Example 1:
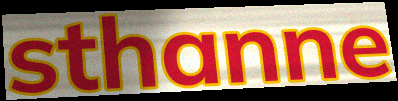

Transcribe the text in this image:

sthanne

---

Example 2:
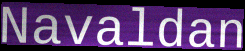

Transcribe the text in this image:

Navaldan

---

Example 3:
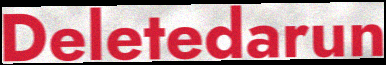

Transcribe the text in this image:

Deletedarun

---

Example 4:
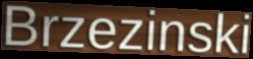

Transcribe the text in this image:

Brzezinski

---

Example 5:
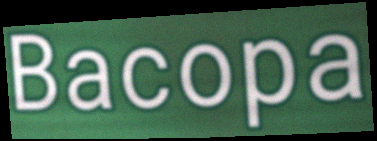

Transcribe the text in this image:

Bacopa